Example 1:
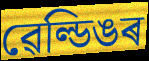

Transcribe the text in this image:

ৱেল্ডিঙৰ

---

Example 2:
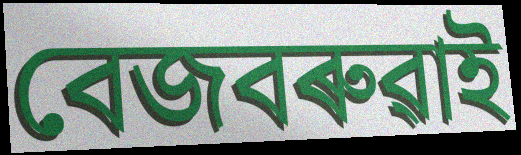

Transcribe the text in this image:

বেজবৰুৱাই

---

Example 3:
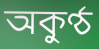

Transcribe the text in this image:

অকুণ্ঠ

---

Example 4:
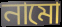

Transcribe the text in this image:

নামো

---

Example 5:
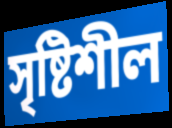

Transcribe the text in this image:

সৃষ্টিশীল